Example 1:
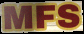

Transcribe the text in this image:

MFS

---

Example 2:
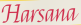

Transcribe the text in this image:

Harsana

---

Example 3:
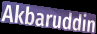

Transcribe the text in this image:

Akbaruddin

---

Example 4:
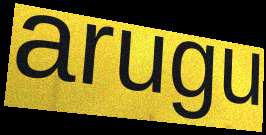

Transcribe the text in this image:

arugu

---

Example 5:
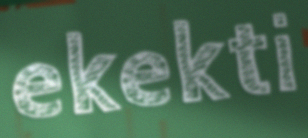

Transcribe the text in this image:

ekekti